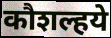
कौशल्हये